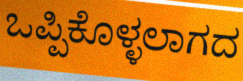
ಒಪ್ಪಿಕೊಳ್ಳಲಾಗದ